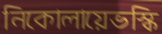
নিকোলায়েভস্কি